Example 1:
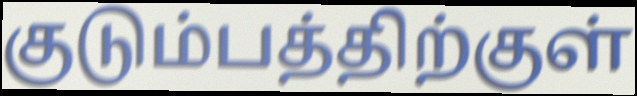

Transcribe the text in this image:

குடும்பத்திற்குள்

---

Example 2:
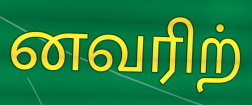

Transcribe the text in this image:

னவரிற்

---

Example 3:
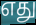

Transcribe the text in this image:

எது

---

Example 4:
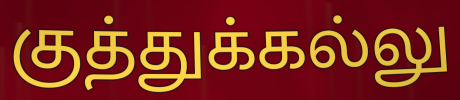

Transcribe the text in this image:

குத்துக்கல்லு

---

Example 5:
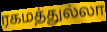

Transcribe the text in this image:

ரகமத்துல்லா